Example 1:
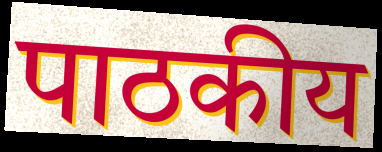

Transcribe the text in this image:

पाठकीय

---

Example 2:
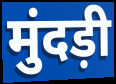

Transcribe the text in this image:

मुंदड़ी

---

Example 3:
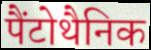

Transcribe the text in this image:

पैंटोथैनिक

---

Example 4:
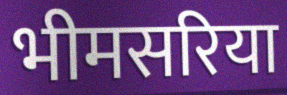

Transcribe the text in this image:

भीमसरिया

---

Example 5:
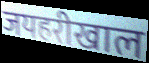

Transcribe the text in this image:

जयहरीखाल